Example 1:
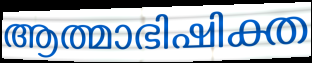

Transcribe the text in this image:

ആത്മാഭിഷിക്ത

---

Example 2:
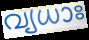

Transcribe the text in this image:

വ്യധാഃ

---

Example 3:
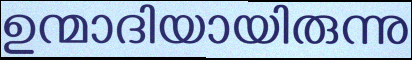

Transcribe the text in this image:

ഉന്മാദിയായിരുന്നു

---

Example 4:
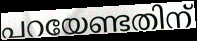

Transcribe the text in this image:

പറയേണ്ടതിന്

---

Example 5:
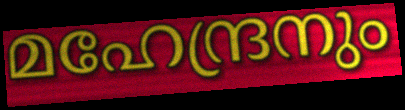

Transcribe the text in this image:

മഹേന്ദ്രനും